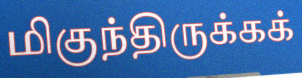
மிகுந்திருக்கக்